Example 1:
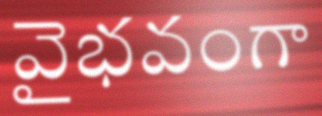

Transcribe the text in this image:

వైభవంగా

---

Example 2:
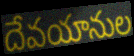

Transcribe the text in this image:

దేవయానుల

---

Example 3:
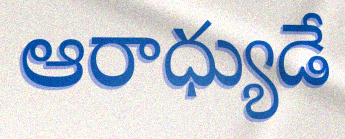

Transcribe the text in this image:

ఆరాధ్యుడే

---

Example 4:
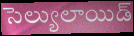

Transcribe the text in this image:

సెల్యులాయిడ్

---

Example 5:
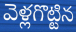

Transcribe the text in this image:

వెళ్లగొట్టిన